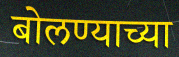
बोलण्याच्या